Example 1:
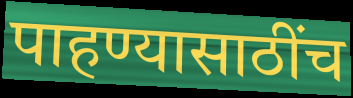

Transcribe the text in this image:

पाहण्यासाठींच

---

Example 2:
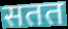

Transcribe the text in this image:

सतत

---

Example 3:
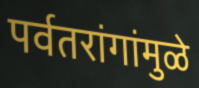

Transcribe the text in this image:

पर्वतरांगांमुळे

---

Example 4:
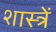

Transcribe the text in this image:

शास्त्रें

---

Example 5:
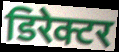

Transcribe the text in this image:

डिरेक्टर